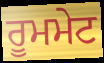
ਰੂਮਮੇਟ